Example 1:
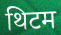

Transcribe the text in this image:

थिटम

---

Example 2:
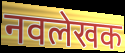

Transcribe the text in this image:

नवलेखक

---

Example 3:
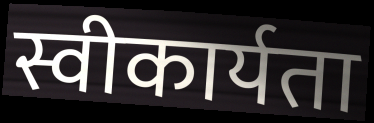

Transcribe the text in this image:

स्वीकार्यता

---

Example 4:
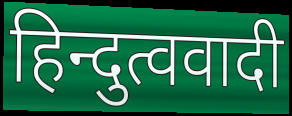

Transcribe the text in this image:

हिन्दुत्ववादी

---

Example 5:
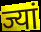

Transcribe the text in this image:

ज्यां